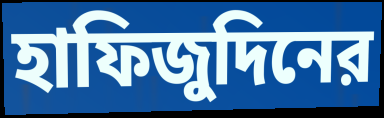
হাফিজুদিনের